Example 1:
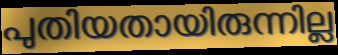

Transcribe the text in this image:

പുതിയതായിരുന്നില്ല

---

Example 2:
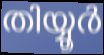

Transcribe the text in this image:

തിയ്യൂർ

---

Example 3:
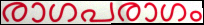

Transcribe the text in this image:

രാഗപരാഗം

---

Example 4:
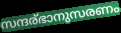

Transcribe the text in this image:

സന്ദര്ഭാനുസരണം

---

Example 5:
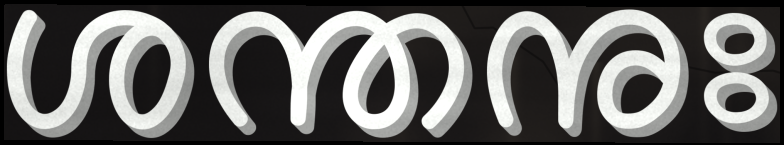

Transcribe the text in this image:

ശന്തനുഃ